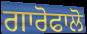
ਗਾਰੋਫਾਲੋ